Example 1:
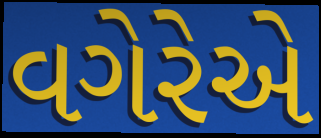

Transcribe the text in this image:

વગેરેએ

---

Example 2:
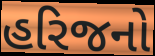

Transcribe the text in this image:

હરિજનો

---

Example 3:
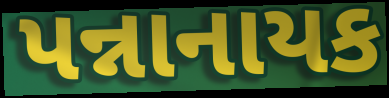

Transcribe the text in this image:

પન્નાનાયક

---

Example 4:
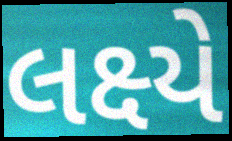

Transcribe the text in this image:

લક્ષ્યે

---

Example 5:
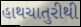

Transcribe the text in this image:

હાથચાતુરીથી